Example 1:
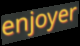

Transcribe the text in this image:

enjoyer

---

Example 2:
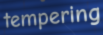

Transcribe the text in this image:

tempering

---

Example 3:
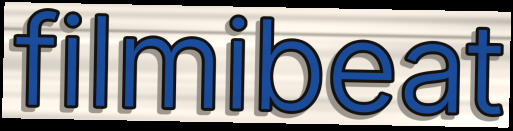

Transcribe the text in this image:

filmibeat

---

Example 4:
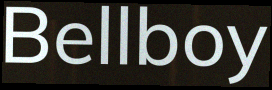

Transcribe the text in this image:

Bellboy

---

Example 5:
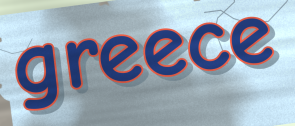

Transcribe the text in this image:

greece